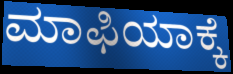
ಮಾಫಿಯಾಕ್ಕೆ